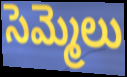
సెమ్మెలు